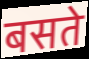
बसते